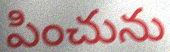
పించును